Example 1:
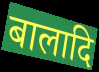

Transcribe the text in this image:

बालादि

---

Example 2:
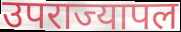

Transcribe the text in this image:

उपराज्यापल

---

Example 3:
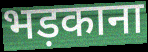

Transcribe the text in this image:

भड़काना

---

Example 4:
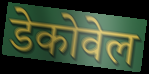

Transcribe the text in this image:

डेकोवेल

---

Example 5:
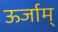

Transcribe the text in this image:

ऊर्जाम्